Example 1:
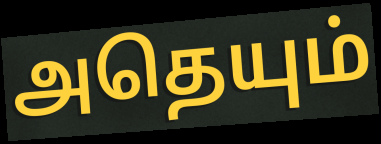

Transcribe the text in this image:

அதெயும்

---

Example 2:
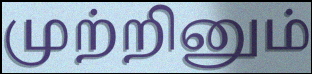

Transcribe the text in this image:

முற்றினும்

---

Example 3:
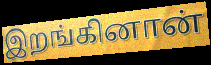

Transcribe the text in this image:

இறங்கினான்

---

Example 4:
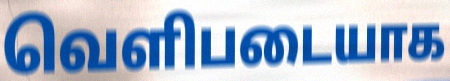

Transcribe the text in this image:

வெளிபடையாக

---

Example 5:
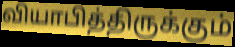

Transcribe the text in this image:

வியாபித்திருக்கும்